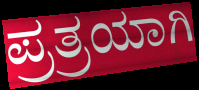
ಪ್ರತ್ರಯಾಗಿ